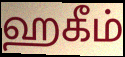
ஹகீம்